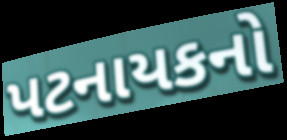
પટનાયકનો